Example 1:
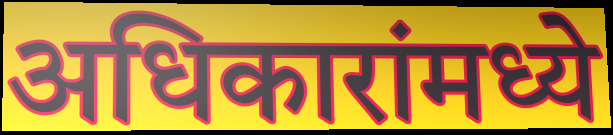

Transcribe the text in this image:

अधिकारांमध्ये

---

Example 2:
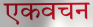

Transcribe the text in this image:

एकवचन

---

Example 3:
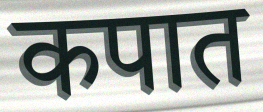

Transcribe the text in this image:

कपात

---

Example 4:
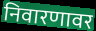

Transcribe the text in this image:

निवारणावर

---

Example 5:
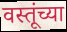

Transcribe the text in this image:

वस्तूंच्या